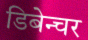
डिबेन्चर